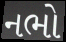
નભો